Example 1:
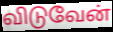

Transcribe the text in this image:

விடுவேன்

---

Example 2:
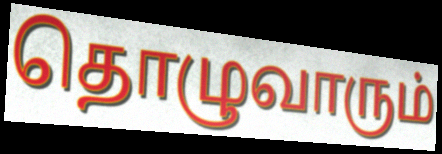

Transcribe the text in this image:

தொழுவாரும்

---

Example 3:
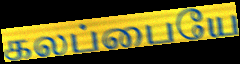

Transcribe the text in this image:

கலப்பையே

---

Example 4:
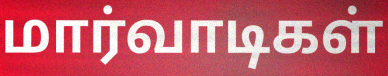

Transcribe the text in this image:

மார்வாடிகள்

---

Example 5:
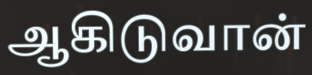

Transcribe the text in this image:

ஆகிடுவான்